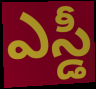
ఎస్డీ